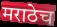
मराठेच